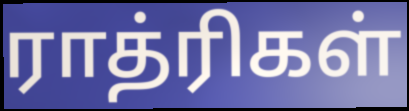
ராத்ரிகள்